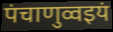
पंचाणुव्वइयं